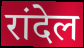
रांदेल